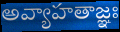
అవ్యాహతాజ్ఞః